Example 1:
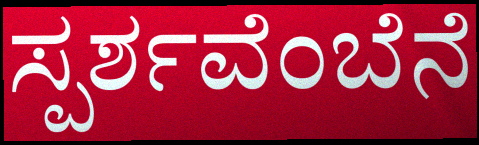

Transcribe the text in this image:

ಸ್ಪರ್ಶವೆಂಬೆನೆ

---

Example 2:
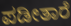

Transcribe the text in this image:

ಪಡೀತಾರೆ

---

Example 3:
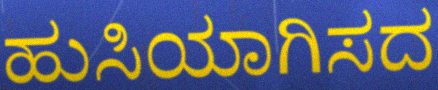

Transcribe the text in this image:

ಹುಸಿಯಾಗಿಸದ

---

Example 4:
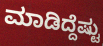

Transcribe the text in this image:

ಮಾಡಿದ್ದೆಷ್ಟು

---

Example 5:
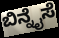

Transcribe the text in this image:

ಬಿನ್ನೈಸೆ